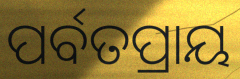
ପର୍ବତପ୍ରାୟ